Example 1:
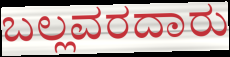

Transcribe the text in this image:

ಬಲ್ಲವರದಾರು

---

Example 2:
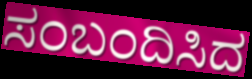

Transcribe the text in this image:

ಸಂಬಂದಿಸಿದ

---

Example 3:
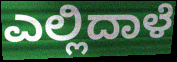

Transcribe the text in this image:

ಎಲ್ಲಿದಾಳೆ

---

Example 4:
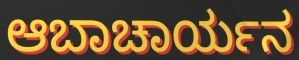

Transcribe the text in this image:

ಆಬಾಚಾರ್ಯನ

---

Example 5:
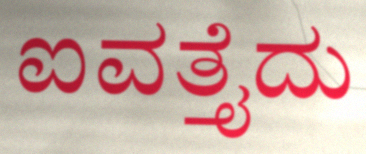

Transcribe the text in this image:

ಐವತ್ತೈದು